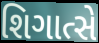
શિગાત્સે